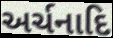
અર્ચનાદિ